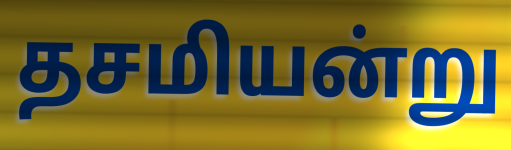
தசமியன்று